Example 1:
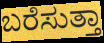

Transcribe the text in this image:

ಬರೆಸುತ್ತಾ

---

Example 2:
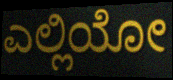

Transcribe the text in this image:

ಎಲ್ಲಿಯೋ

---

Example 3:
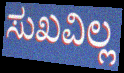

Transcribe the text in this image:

ಸುಖವಿಲ್ಲ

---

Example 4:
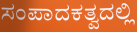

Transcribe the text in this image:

ಸಂಪಾದಕತ್ವದಲ್ಲಿ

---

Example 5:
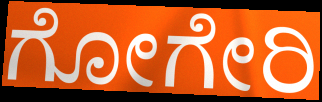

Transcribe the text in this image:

ಗೋಗೇರಿ